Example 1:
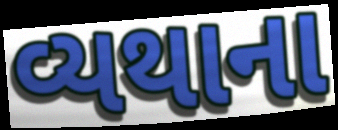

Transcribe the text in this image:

વ્યથાના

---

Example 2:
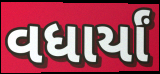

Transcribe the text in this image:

વધાર્યાં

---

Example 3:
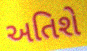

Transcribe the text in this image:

અતિશે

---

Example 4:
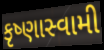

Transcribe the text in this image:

કૃષ્ણાસ્વામી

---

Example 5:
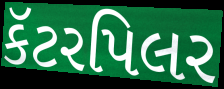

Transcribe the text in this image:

કૅટરપિલર